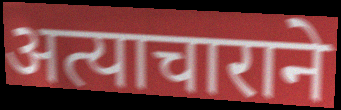
अत्याचाराने